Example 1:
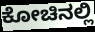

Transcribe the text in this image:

ಕೋಚಿನಲ್ಲಿ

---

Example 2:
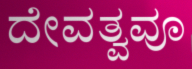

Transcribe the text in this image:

ದೇವತ್ವವೂ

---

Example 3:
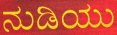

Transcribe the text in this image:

ನುಡಿಯು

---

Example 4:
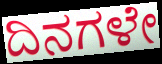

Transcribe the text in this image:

ದಿನಗಳೇ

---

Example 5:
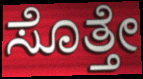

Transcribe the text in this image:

ಸೊತ್ತೇ